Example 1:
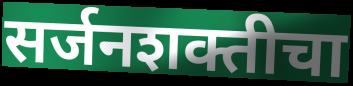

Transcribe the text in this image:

सर्जनशक्तीचा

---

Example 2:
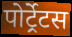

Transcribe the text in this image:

पोर्ट्रेटस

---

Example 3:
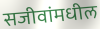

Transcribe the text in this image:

सजीवांमधील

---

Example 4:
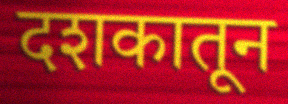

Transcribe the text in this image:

दशकातून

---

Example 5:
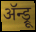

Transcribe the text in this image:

ॲन्ड्रू